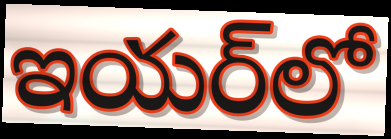
ఇయర్‌లో